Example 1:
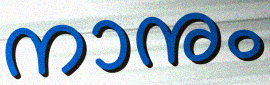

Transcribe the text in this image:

നാനും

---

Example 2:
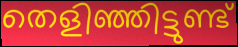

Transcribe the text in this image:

തെളിഞ്ഞിട്ടുണ്ട്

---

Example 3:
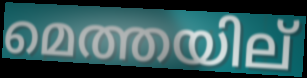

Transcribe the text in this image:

മെത്തയില്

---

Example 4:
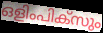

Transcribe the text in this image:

ഒളിംപിക്സും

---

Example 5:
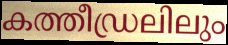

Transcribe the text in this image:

കത്തീഡ്രലിലും